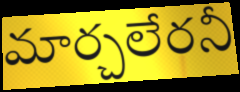
మార్చలేరనీ